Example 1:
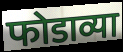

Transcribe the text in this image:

फोडाव्या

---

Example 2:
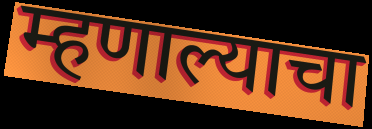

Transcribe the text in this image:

म्हणाल्याचा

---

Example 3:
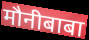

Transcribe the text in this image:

मौनीबाबा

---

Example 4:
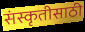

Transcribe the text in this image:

संस्कृतीसाठी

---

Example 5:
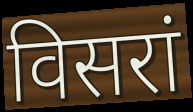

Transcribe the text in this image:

विसरां